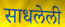
साधलेली